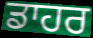
ਡਾਹਰ